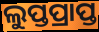
ଲୁପ୍ତପ୍ରାପ୍ତ